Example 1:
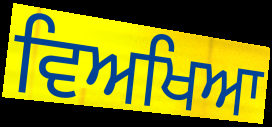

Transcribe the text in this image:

ਵਿਅਖਿਆ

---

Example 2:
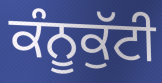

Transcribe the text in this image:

ਕੰਨੂਕੁੱਟੀ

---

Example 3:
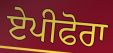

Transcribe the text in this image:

ਏਪੀਫੋਰਾ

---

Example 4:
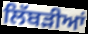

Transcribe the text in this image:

ਲਿੱਬੜੀਆਂ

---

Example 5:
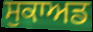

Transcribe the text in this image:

ਸੁਕਾਅਡ